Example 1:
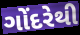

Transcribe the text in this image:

ગોંદરેથી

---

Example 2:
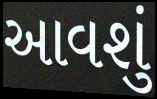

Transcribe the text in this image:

આવશું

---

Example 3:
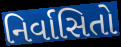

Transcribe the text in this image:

નિર્વાસિતો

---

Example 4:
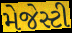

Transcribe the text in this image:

મેજેસ્ટી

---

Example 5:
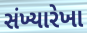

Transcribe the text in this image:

સંખ્યારેખા